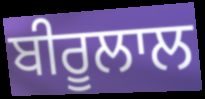
ਬੀਰੂਲਾਲ